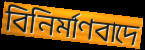
বিনিৰ্মাণবাদে